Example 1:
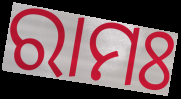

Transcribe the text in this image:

ରାମଃ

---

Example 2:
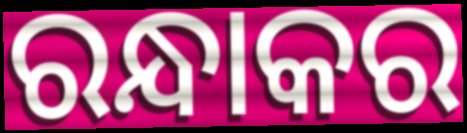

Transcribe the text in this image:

ରନ୍ଧାକର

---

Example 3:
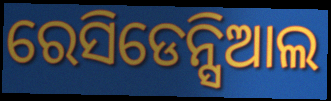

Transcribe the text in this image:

ରେସିଡେନ୍ସିଆଲ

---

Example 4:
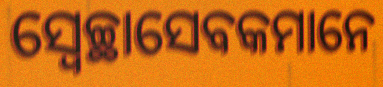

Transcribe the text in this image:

ସ୍ୱେଚ୍ଛାସେବକମାନେ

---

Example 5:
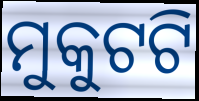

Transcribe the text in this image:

ମୁକୁଟଟି